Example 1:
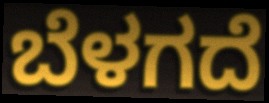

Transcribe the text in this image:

ಬೆಳಗದೆ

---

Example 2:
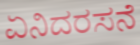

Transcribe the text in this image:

ಏನಿದರಸನೆ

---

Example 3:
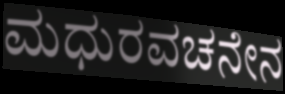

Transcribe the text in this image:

ಮಧುರವಚನೇನ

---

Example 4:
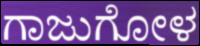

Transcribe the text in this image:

ಗಾಜುಗೋಳ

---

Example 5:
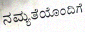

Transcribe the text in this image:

ನಮ್ಯತೆಯೊಂದಿಗೆ